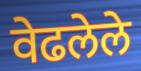
वेढलेले